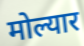
मोल्यार